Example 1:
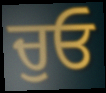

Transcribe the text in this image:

ਚੁਓ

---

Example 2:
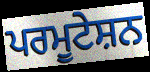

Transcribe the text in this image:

ਪਰਮੂਟੇਸ਼ਨ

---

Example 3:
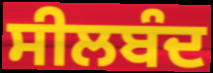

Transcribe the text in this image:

ਸੀਲਬੰਦ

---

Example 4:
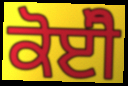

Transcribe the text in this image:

ਕੋਈੋ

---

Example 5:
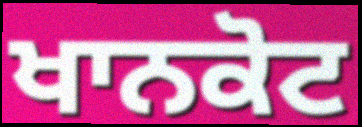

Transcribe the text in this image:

ਖਾਨਕੋਟ